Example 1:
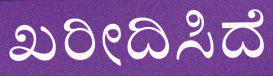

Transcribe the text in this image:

ಖರೀದಿಸಿದೆ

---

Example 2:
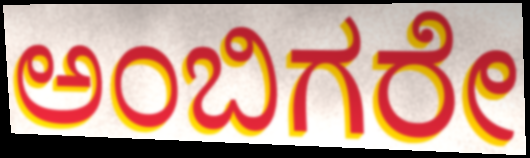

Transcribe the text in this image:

ಅಂಬಿಗರೇ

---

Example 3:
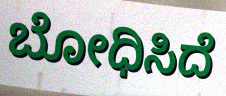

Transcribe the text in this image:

ಬೋಧಿಸಿದೆ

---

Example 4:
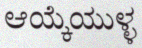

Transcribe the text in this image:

ಆಯ್ಕೆಯುಳ್ಳ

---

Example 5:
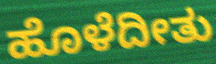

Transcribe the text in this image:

ಹೊಳೆದೀತು